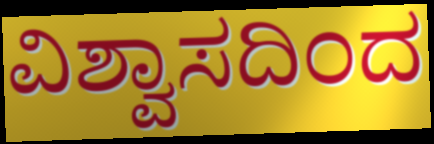
ವಿಶ್ವಾಸದಿಂದ